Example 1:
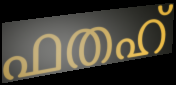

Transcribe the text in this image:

ഫതഹ്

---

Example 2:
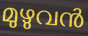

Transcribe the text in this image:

മുഴുവൻ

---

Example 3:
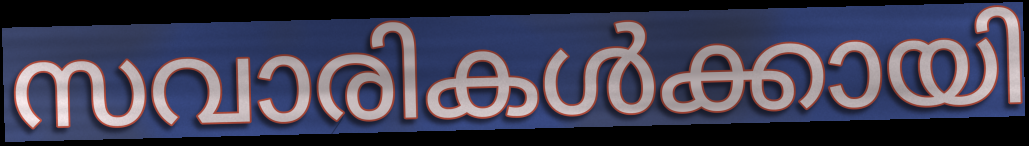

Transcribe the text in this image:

സവാരികൾക്കായി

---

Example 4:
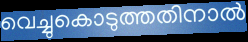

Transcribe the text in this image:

വെച്ചുകൊടുത്തതിനാൽ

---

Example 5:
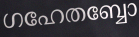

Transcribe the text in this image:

ഗഹേതബ്ബോ